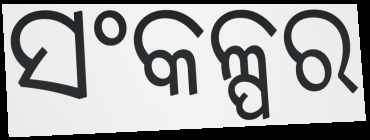
ସଂକଳ୍ପର